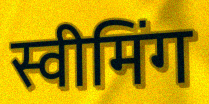
स्वीमिंग